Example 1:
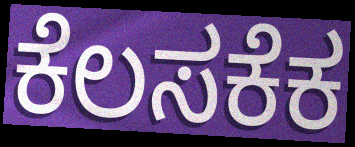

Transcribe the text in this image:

ಕೆಲಸಕೆಕ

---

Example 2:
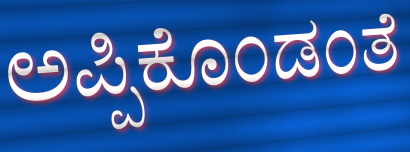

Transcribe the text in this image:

ಅಪ್ಪಿಕೊಂಡಂತೆ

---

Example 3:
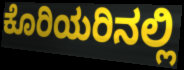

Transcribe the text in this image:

ಕೊರಿಯರಿನಲ್ಲಿ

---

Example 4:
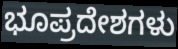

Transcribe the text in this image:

ಭೂಪ್ರದೇಶಗಳು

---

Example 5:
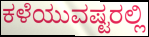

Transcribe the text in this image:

ಕಳೆಯುವಷ್ಟರಲ್ಲಿ